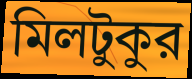
মিলটুকুর